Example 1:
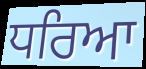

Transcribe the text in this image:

ਧਰਿਆ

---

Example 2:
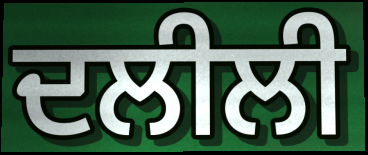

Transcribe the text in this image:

ਦਲੀਲੀ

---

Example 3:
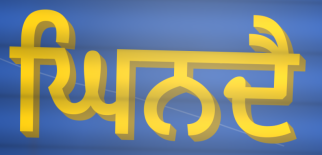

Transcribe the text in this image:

ਘਿਨਦੈ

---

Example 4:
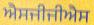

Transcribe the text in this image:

ਐਸਜੀਜੀਐਸ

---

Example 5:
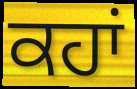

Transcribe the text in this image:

ਕਹਾਂ